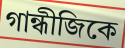
গান্ধীজিকে